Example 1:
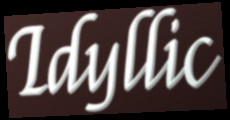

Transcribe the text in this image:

Idyllic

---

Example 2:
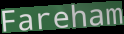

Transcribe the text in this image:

Fareham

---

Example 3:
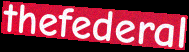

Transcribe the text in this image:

thefederal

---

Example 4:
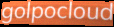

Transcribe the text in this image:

golpocloud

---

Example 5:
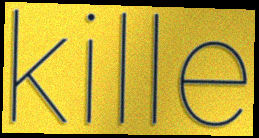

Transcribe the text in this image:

kille